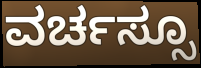
ವರ್ಚಸ್ಸೂ